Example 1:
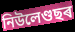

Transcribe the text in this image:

নিউলেণ্ডছৰ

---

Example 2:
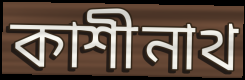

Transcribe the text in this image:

কাশীনাথ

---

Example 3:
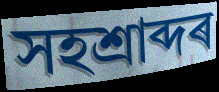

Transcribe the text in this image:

সহশ্ৰাব্দৰ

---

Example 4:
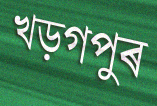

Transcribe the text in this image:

খড়গপুৰ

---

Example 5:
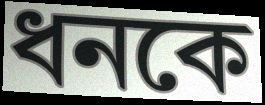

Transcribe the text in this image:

ধনকে